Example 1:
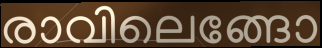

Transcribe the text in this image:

രാവിലെങ്ങോ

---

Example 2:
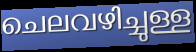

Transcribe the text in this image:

ചെലവഴിച്ചുള്ള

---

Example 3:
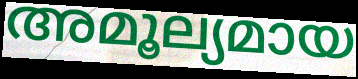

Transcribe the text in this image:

അമൂല്യമായ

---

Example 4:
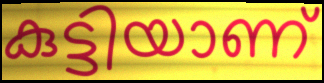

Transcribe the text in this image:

കുട്ടിയാണ്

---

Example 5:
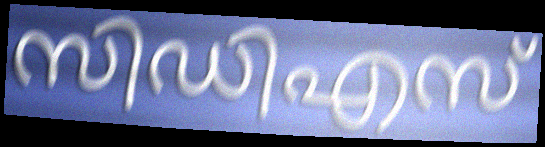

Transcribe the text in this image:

സിഡിഎസ്